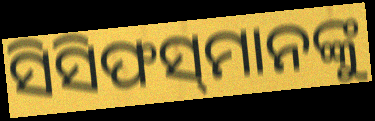
ସିସିଫସ୍‌ମାନଙ୍କୁ